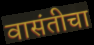
वासंतीचा